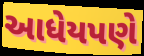
આધેયપણે